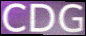
CDG